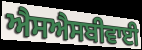
ਐਸਐਸਬੀਵਾਈ